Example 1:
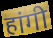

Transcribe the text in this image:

हांगी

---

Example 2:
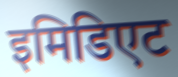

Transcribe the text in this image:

इमिडिएट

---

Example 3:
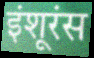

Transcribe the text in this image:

इंशूरंस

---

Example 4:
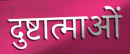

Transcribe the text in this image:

दुष्टात्माओं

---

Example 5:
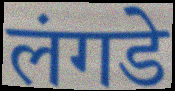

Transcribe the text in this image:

लंगडे